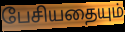
பேசியதையும்